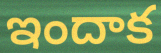
ఇందాక